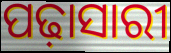
ପଢ଼ାସାରୀ